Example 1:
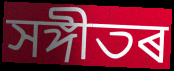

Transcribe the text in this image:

সঙ্গীতৰ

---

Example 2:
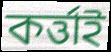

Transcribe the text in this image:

কৰ্ত্তাই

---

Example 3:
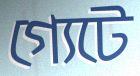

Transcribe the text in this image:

গ্যেটে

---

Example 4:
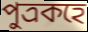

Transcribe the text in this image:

পুত্ৰকহে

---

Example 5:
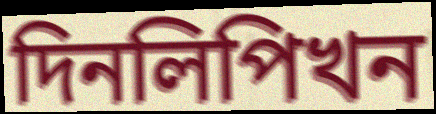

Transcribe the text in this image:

দিনলিপিখন